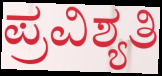
ಪ್ರವಿಶ್ಯತಿ